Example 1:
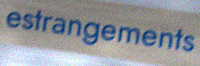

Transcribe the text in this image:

estrangements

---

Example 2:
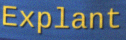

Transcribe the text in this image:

Explant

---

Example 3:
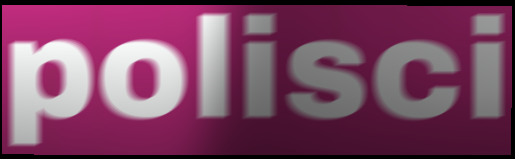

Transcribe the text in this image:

polisci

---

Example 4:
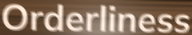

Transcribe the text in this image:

Orderliness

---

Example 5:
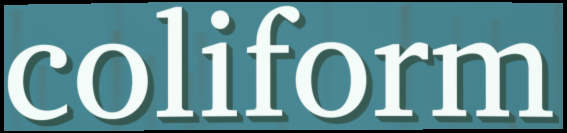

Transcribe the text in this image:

coliform